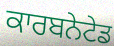
ਕਾਰਬਨੇਟੇਡ